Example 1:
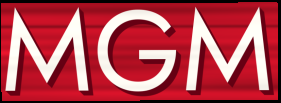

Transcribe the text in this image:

MGM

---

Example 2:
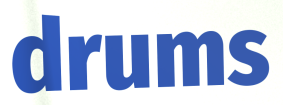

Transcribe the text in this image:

drums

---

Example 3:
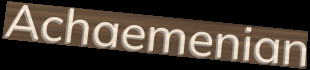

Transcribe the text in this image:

Achaemenian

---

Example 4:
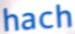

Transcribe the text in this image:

hach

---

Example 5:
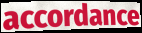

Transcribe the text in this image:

accordance